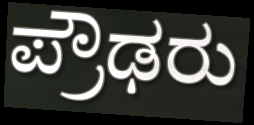
ಪ್ರೌಢರು